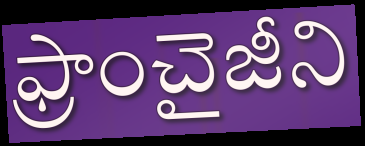
ఫ్రాంచైజీని